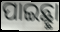
ପାଇଛ୍ଛା